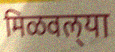
मिळवल्या